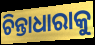
ଚିନ୍ତାଧାରାକୁ